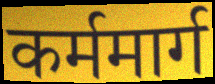
कर्ममार्ग